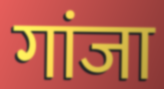
गांजा